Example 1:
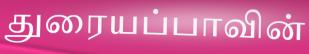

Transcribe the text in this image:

துரையப்பாவின்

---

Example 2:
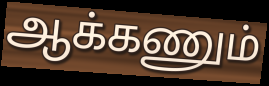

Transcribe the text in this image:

ஆக்கணும்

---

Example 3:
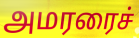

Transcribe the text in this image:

அமரரைச்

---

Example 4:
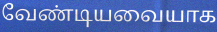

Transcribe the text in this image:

வேண்டியவையாக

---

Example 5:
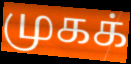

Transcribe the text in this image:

முகக்